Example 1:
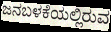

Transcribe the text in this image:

ಜನಬಳಕೆಯಲ್ಲಿರುವ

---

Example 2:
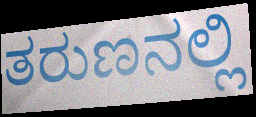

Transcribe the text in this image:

ತರುಣನಲ್ಲಿ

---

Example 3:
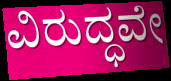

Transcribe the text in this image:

ವಿರುದ್ಧವೇ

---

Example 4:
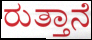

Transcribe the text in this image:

ರುತ್ತಾನೆ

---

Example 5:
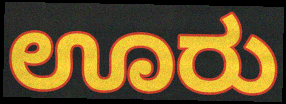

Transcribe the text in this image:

ಊರು